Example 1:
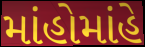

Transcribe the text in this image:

માંહોમાંહે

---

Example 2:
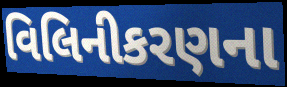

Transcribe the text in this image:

વિલિનીકરણના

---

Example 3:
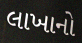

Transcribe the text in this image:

લાખાનો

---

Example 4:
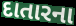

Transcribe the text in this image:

દાતારના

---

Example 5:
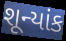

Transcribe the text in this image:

શૂન્યાંક